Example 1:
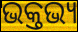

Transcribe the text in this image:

ଭକ୍ତଭ୍ୟ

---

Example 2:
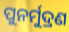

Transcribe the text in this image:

ପୁନର୍ମୁଦ୍ରଣ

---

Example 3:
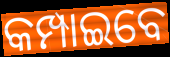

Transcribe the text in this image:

କମ୍ପାଇବେ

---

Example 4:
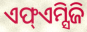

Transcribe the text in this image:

ଏଫ୍ଏମ୍ସିଜି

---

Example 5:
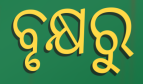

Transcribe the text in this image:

ବୃକ୍ଷରୁ